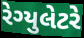
રેગ્યુલેટરે